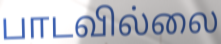
பாடவில்லை